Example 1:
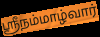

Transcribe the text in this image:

ஸ்ரீநம்மாழ்வார்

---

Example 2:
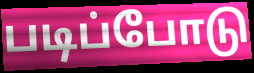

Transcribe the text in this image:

படிப்போடு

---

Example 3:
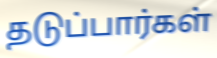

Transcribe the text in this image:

தடுப்பார்கள்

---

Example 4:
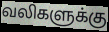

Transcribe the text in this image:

வலிகளுக்கு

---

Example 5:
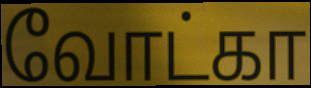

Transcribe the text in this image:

வோட்கா